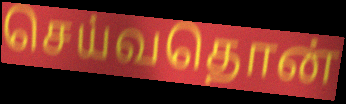
செய்வதொன்